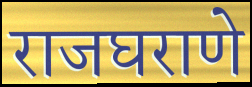
राजघराणे